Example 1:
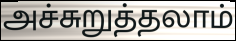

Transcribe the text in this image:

அச்சுறுத்தலாம்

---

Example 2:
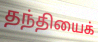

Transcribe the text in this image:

தந்தியைக்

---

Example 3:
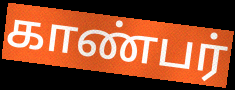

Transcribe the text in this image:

காண்பர்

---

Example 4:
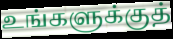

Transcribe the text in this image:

உங்களுக்குத்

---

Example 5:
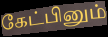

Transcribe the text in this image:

கேட்பினும்